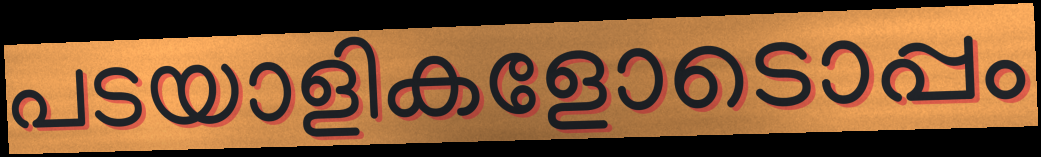
പടയാളികളോടൊപ്പം